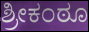
ಶ್ರೀಕಂಠೂ